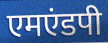
एमएंडपी